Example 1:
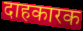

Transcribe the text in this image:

दाहकारक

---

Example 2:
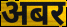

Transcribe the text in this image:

अबर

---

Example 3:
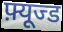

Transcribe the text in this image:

फ़्यूज्ड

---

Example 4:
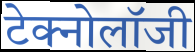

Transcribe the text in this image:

टेक्‍नोलॉजी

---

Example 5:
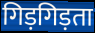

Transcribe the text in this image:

गिड़गिड़ता